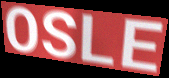
OSLE